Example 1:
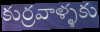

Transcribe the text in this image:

కుర్రవాళ్ళకు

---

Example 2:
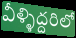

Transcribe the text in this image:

వీళ్ళిద్దరిలో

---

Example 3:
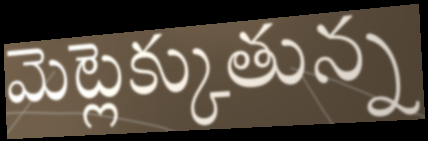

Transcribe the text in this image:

మెట్లెక్కుతున్న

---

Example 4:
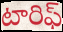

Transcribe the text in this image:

టారిఫ్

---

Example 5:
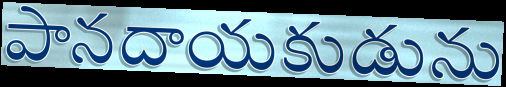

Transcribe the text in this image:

పానదాయకుడును